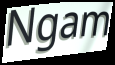
Ngam